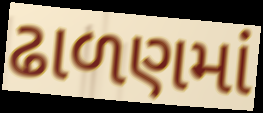
ઢાળણમાં